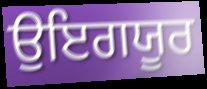
ਉਇਗਯੂਰ